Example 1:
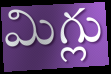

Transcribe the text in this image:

మిగ్లు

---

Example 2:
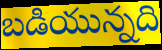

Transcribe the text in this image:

బడియున్నది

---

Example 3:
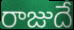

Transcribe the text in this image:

రాజుదే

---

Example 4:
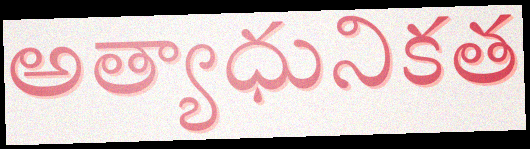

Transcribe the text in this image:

అత్యాధునికత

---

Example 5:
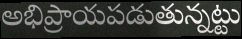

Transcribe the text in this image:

అభిప్రాయపడుతున్నట్టు